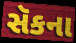
સૅકના